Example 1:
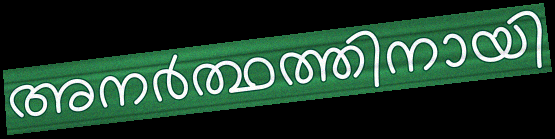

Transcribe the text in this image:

അനർത്ഥത്തിനായി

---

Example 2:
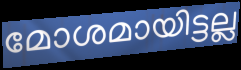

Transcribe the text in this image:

മോശമായിട്ടല്ല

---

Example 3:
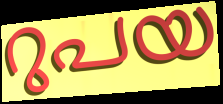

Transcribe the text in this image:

റുപയ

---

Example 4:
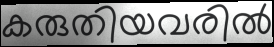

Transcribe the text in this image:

കരുതിയവരിൽ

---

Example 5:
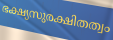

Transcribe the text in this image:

ഭക്ഷ്യസുരക്ഷിതത്വം